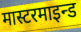
मास्टरमाइन्ड